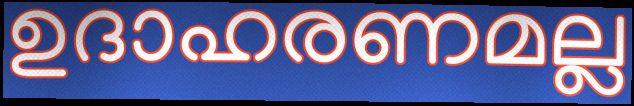
ഉദാഹരണമല്ല